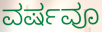
ವರ್ಷವೂ